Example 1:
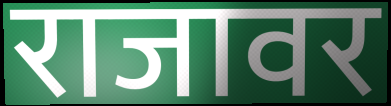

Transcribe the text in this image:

राजावर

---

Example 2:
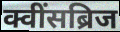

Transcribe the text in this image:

क्वींसब्रिज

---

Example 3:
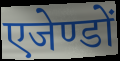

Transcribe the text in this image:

एजेण्डों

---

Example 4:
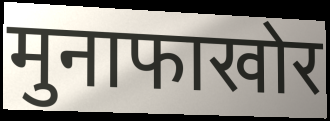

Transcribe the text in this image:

मुनाफाखोर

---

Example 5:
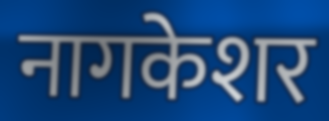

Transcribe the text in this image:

नागकेशर